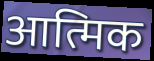
आत्मिक